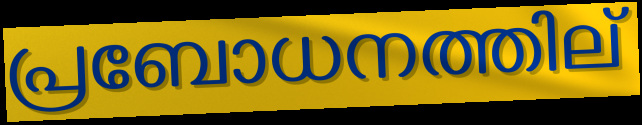
പ്രബോധനത്തില്